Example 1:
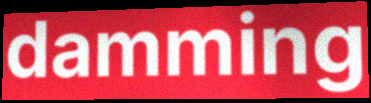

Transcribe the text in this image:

damming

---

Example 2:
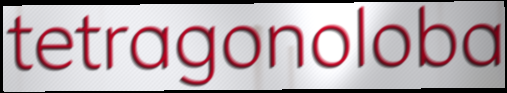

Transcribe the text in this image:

tetragonoloba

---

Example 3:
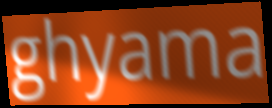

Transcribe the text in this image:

ghyama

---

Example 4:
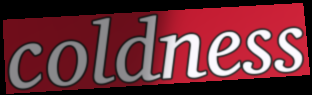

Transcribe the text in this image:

coldness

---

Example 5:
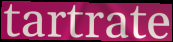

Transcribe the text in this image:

tartrate